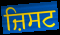
ਜ਼ਿਸਟ